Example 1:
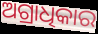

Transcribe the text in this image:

ଅଗ୍ରାଧିକାର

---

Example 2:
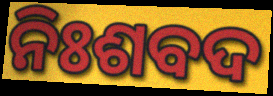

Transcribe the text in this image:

ନିଃଶବଦ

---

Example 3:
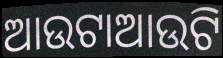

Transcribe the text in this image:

ଆଉଟାଆଉଟି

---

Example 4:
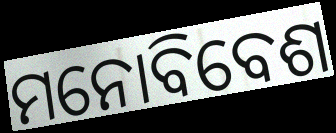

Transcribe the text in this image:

ମନୋବିବେଶ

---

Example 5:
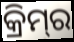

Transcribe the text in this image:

କ୍ରିମ୍‌ର